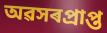
অৱসৰপ্ৰাপ্ত